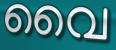
വൈ